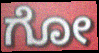
ಗೋ